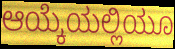
ಆಯ್ಕೆಯಲ್ಲಿಯೂ